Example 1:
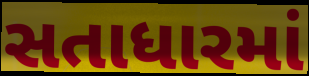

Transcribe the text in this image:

સતાધારમાં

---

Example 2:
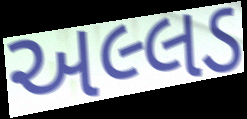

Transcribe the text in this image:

અલ્લડ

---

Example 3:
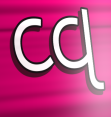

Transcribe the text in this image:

વ્વ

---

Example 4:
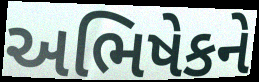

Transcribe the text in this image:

અભિષેકને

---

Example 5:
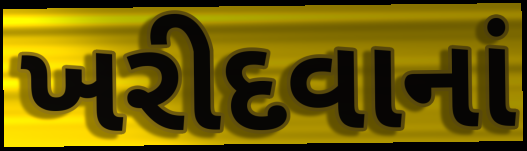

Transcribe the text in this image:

ખરીદવાનાં